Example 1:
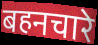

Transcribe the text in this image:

बहनचारे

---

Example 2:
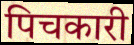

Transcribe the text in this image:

पिचकारी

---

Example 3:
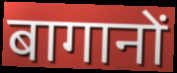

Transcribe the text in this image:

बागानों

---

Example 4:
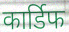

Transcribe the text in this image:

कार्डिफ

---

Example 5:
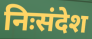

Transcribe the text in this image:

निःसंदेश